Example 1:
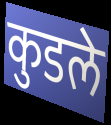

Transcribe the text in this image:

कुडले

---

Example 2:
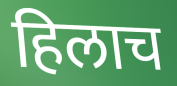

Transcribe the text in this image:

हिलाच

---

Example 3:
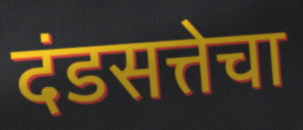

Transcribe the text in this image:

दंडसत्तेचा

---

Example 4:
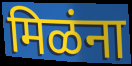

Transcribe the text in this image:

मिळंना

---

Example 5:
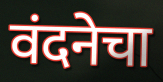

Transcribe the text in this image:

वंदनेचा